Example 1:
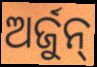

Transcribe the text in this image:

ଅର୍ଜୁନ୍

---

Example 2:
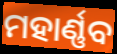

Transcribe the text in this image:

ମହାର୍ଣ୍ଣବ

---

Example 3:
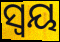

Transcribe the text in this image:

ସ୍ବୟ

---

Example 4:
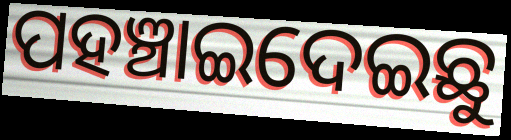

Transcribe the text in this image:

ପହଞ୍ଚାଇଦେଇଛୁ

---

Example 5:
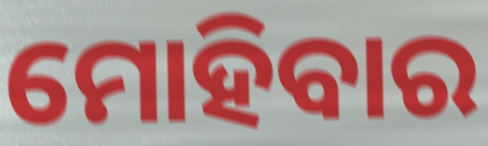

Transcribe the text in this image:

ମୋହିବାର